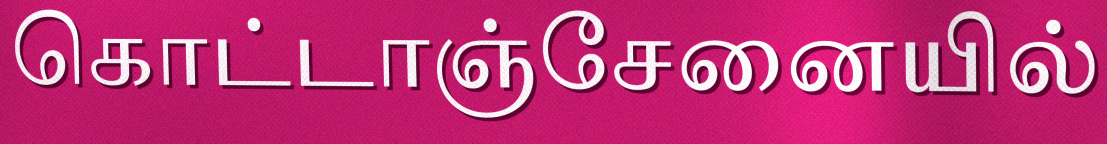
கொட்டாஞ்சேனையில்